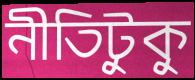
নীতিটুকু